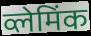
व्लेमिंक